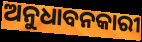
ଅନୁଧାବନକାରୀ